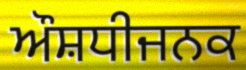
ਔਸ਼ਧੀਜਨਕ